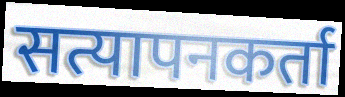
सत्यापनकर्ता